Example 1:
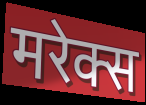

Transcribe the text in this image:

मरेक्स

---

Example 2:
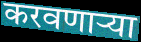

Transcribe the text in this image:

करवणाऱ्या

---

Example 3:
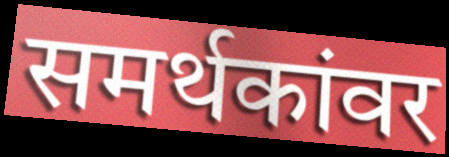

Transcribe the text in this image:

समर्थकांवर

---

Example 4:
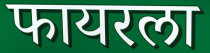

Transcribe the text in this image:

फायरला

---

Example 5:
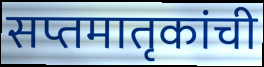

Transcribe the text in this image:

सप्तमातृकांची